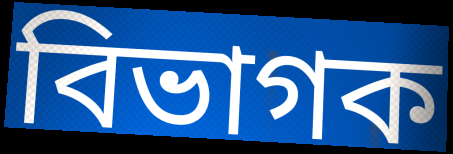
বিভাগক